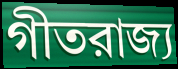
গীতরাজ্য